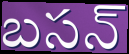
బసన్